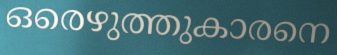
ഒരെഴുത്തുകാരനെ